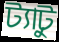
ট্যাটু